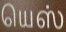
யெஸ்